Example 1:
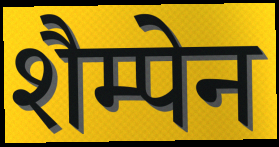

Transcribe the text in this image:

शैम्पेन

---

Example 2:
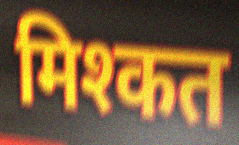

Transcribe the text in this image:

मिश्कत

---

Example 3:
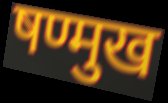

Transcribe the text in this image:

षण्मुख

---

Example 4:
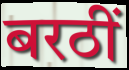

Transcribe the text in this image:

बरठीं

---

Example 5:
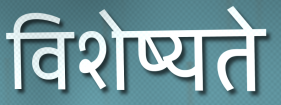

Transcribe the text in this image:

विशेष्यते